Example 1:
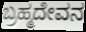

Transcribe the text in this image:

ಬ್ರಹ್ಮದೇವನ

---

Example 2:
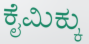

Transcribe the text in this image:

ಕೈಮಿಕ್ಕು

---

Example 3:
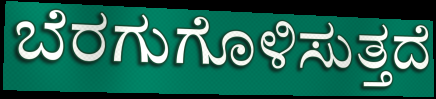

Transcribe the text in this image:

ಬೆರಗುಗೊಳಿಸುತ್ತದೆ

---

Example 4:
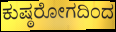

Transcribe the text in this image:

ಕುಷ್ಠರೋಗದಿಂದ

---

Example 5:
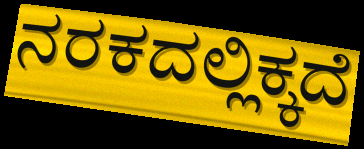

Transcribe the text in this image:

ನರಕದಲ್ಲಿಕ್ಕದೆ